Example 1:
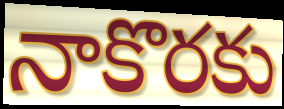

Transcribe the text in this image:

నాకొరకు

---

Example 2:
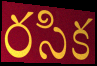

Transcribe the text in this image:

రసిక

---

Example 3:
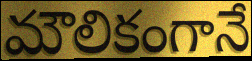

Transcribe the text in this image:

మౌలికంగానే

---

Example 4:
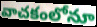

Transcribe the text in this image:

వాచకంలోనూ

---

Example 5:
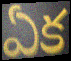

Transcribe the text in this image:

ఏక